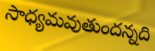
సాధ్యమవుతుందన్నది